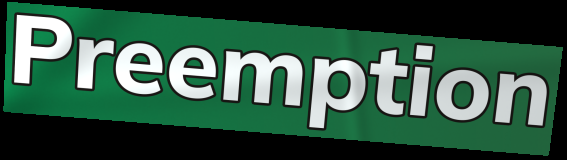
Preemption